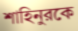
শাহিনুরকে